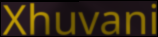
Xhuvani